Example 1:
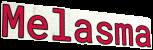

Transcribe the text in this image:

Melasma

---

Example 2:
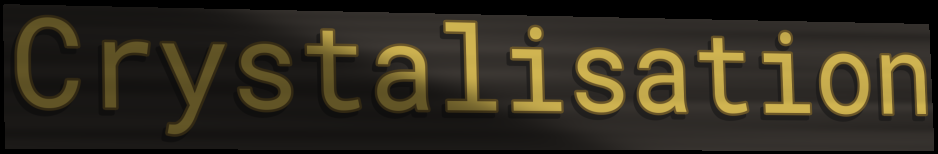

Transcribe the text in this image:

Crystalisation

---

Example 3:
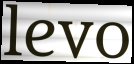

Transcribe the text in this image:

levo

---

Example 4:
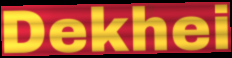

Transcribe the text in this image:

Dekhei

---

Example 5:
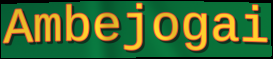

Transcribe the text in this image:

Ambejogai